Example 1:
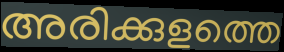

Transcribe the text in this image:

അരിക്കുളത്തെ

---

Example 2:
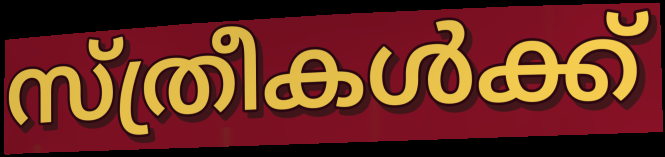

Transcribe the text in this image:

സ്ത്രീകൾക്ക്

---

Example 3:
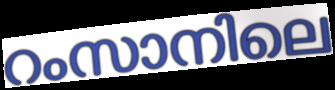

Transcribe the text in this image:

റംസാനിലെ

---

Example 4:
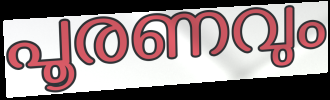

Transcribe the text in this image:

പൂരണവും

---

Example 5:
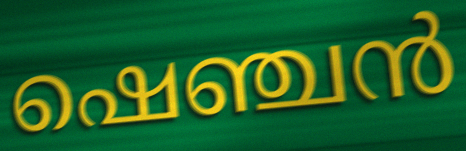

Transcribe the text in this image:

ഷെഞ്ചൻ